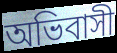
অভিবাসী